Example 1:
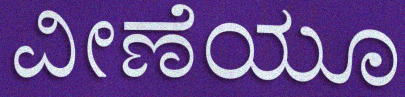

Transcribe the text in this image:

ವೀಣೆಯೂ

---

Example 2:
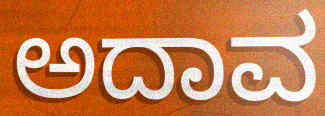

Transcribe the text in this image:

ಅದಾವ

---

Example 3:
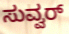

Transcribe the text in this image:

ಸುವ್ವರ್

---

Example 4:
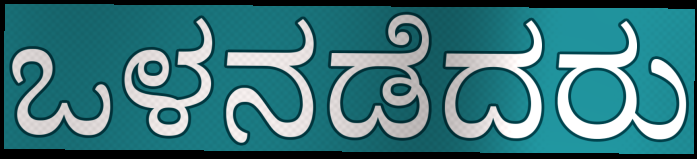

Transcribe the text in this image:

ಒಳನಡೆದರು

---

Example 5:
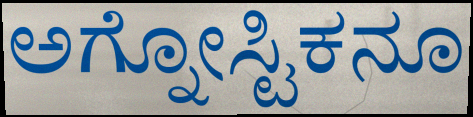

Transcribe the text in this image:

ಅಗ್ನೋಸ್ಟಿಕನೂ